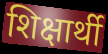
शिक्षार्थी